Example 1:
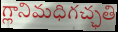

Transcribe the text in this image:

గ్లానిమధిగచ్ఛతి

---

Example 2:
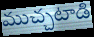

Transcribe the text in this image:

ముచ్చటాడి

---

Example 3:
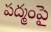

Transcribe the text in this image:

పద్మంపై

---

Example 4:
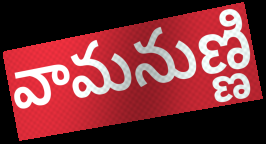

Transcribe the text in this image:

వామనుణ్ణి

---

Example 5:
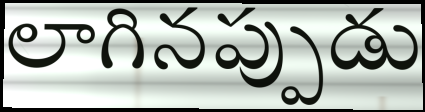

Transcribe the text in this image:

లాగినప్పుడు